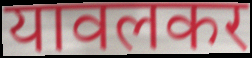
यावलकर